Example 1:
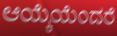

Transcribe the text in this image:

ಆಯ್ಕೆಯೆಂದರೆ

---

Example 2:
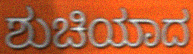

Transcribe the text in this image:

ಶುಚಿಯಾದ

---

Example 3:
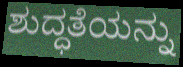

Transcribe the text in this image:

ಶುದ್ಧತೆಯನ್ನು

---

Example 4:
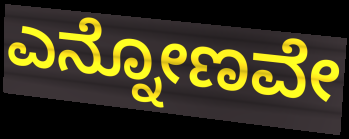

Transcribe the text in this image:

ಎನ್ನೋಣವೇ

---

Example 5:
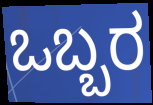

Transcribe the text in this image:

ಒಬ್ಬರ